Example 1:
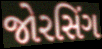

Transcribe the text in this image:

જોરસિંગ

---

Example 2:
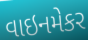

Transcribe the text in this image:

વાઇનમેકર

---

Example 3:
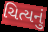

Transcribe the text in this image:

ચિત્યનું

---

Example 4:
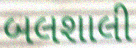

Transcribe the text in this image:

બલશાલી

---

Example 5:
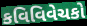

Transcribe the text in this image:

કવિવિવેચકો